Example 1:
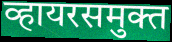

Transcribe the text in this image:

व्हायरसमुक्त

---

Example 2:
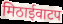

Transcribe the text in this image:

मिठाईवाटप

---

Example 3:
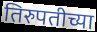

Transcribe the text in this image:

तिरुपतीच्या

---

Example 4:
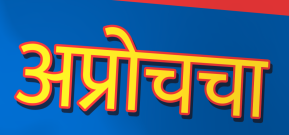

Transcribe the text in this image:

अप्रोचचा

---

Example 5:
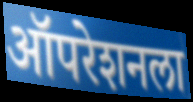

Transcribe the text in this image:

ऑपरेशनला